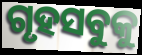
ଗୃହସବୁକୁ